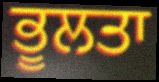
ਭੂਲਤਾ